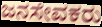
ಜನಸೇವಕರು